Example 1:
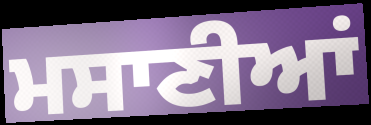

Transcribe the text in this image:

ਮਸਾਣੀਆਂ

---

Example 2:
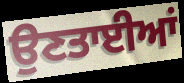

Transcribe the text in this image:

ਉਣਤਾਈਆਂ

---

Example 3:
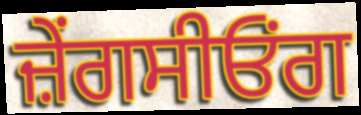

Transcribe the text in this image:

ਜ਼ੇਂਗਸੀਓਂਗ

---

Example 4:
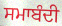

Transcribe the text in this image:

ਸਮਾਬੰਦੀ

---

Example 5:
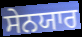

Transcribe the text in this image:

ਸੇਨਯਾਰ